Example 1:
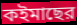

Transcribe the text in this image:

কইমাছের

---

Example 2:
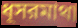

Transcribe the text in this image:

ধূসরমাথা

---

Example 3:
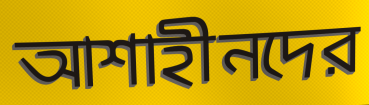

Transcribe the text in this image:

আশাহীনদের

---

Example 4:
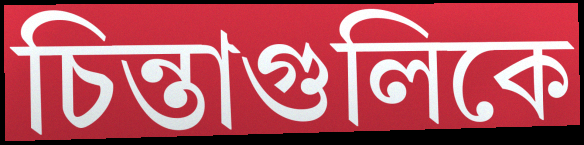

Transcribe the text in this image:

চিন্তাগুলিকে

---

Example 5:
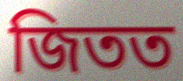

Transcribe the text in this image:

জিতত